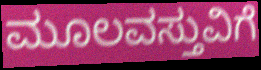
ಮೂಲವಸ್ತುವಿಗೆ